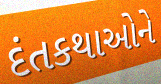
દંતકથાઓને